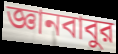
জ্ঞানবাবুর